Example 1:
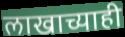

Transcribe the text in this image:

लाखाच्याही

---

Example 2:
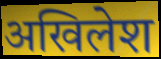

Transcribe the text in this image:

अखिलेश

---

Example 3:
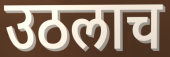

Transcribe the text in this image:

उठलाच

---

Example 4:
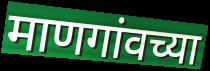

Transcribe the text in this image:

माणगांवच्या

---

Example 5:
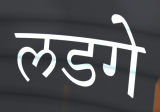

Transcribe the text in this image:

लडगे